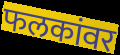
फलकांवर